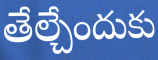
తేల్చేందుకు